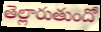
తెల్లారుతుందో